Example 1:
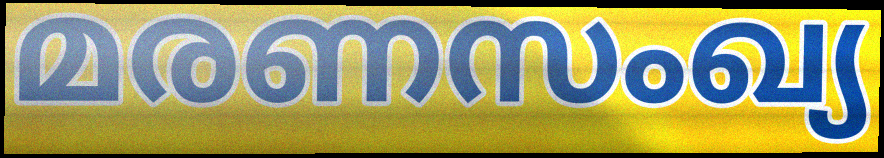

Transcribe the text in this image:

മരണസംഖ്യ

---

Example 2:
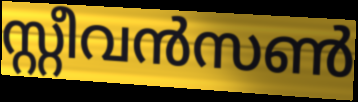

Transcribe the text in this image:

സ്റ്റീവൻസൺ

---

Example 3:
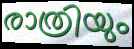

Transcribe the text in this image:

രാത്രിയും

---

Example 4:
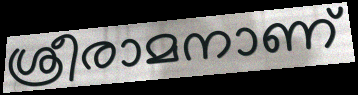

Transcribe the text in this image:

ശ്രീരാമനാണ്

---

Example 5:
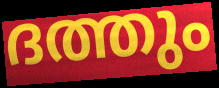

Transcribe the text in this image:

ദത്തും